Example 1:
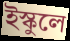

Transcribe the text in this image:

ইস্কুলে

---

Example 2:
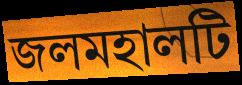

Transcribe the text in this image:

জলমহালটি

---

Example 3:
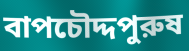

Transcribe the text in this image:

বাপচৌদ্দপুরুষ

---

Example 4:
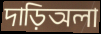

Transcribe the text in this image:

দাড়িঅলা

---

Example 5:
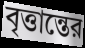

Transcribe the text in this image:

বৃত্তান্তের